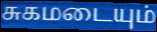
சுகமடையும்